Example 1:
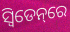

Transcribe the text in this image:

ସ୍ୱିଡେନ୍‌ରେ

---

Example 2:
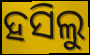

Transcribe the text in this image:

ହସିଲୁ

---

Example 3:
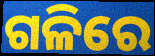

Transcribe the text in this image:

ଗଳିରେ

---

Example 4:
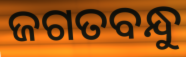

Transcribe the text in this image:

ଜଗତବନ୍ଧୁ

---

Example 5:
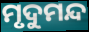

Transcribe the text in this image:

ମୃଦୁମନ୍ଦ